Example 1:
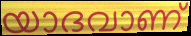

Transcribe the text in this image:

യാദവാണ്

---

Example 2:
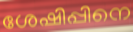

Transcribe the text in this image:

ശേഷിപ്പിനെ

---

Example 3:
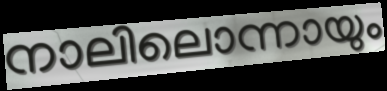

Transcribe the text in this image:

നാലിലൊന്നായും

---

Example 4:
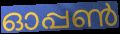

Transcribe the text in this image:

ഓപ്പൺ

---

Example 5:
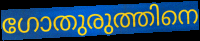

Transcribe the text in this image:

ഗോതുരുത്തിനെ